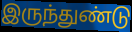
இருந்துண்டு